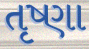
તૃષ્ણા